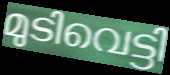
മുടിവെട്ടി